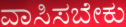
ವಾಸಿಸಬೇಕು